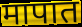
मापात